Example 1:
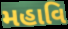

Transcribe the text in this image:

મહાવિ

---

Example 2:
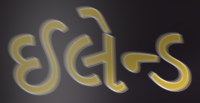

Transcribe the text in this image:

ઈલેન્ડ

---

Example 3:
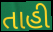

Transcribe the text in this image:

તાહી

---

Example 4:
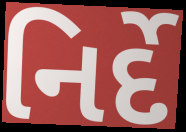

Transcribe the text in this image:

નિર્દે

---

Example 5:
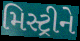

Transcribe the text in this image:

મિસ્ટ્રીને